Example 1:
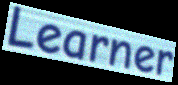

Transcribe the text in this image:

Learner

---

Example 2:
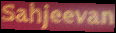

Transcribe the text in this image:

Sahjeevan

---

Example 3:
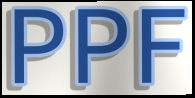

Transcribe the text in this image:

PPF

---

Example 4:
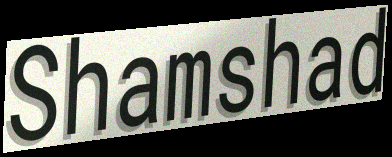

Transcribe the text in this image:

Shamshad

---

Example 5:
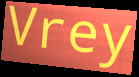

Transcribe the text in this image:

Vrey